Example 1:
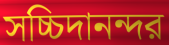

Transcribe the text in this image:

সচ্চিদানন্দর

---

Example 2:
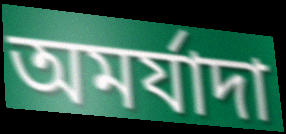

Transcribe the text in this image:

অমর্যাদা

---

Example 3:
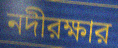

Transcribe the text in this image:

নদীরক্ষার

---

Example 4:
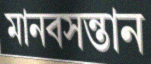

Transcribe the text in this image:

মানবসন্তান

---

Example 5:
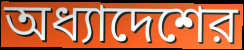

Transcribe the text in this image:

অধ্যাদেশের